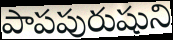
పాపపురుషుని